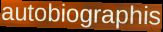
autobiographis